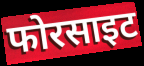
फोरसाइट